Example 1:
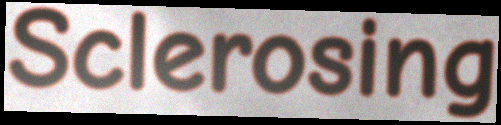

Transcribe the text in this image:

Sclerosing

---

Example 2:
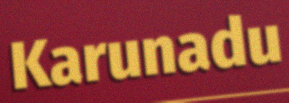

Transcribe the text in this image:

Karunadu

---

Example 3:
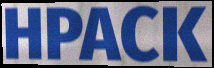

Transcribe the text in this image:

HPACK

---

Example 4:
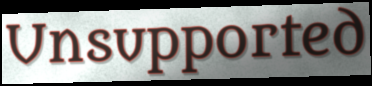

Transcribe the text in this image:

Unsupported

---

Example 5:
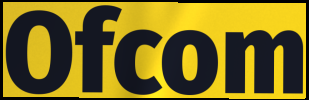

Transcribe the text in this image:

Ofcom